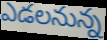
ఎడలనున్న